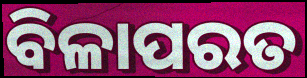
ବିଳାପରତ